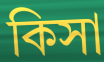
কিসা